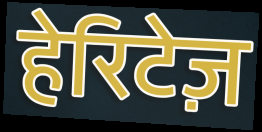
हेरिटेज़